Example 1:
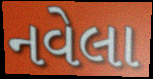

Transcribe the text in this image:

નવેલા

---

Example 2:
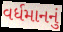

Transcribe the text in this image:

વર્ધમાનનું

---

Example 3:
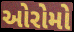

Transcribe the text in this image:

ઓરોમો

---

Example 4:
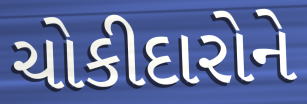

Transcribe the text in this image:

ચોકીદારોને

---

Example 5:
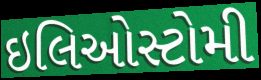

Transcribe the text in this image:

ઇલિઓસ્ટોમી